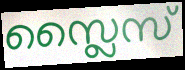
സ്ലൈസ്